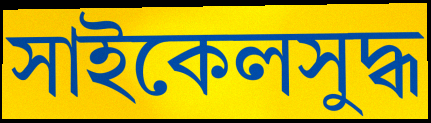
সাইকেলসুদ্ধ